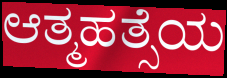
ಆತ್ಮಹತ್ಸೆಯ